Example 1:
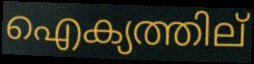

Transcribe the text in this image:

ഐക്യത്തില്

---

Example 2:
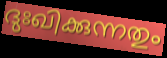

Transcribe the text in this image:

ദുഃഖിക്കുന്നതും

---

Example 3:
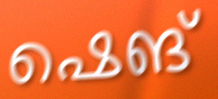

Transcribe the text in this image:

ഷെങ്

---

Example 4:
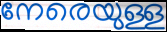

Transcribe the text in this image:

നേരെയുള്ള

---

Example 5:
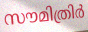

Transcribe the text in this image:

സൗമിത്രിർ